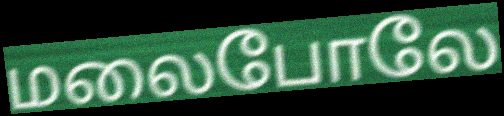
மலைபோலே